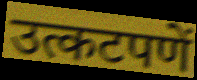
उत्कटपणें